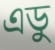
এডু